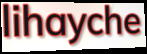
lihayche